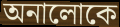
অনালোকে